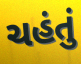
ચહંતું